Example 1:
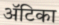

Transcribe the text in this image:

ॲटिका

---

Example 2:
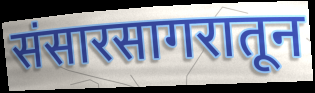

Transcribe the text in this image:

संसारसागरातून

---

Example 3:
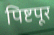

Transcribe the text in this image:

पिष्टपूर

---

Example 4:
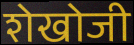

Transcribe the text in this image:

शेखोजी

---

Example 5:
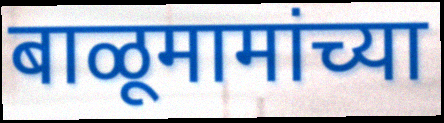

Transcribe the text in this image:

बाळूमामांच्या